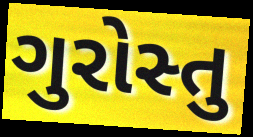
ગુરોસ્તુ